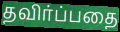
தவிர்ப்பதை